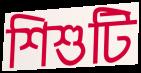
শিশুটি